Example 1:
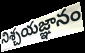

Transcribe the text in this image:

నిశ్చయజ్ఞానం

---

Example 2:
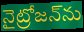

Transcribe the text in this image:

నైట్రోజన్‌ను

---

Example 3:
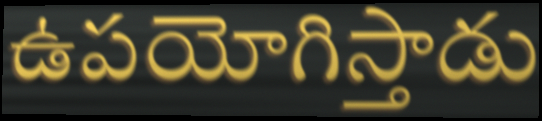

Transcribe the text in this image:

ఉపయోగిస్తాడు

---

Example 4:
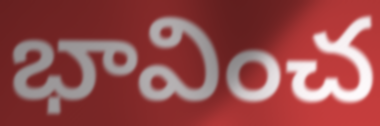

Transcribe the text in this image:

భావించ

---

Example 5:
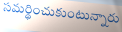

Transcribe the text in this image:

సమర్థించుకుంటున్నారు